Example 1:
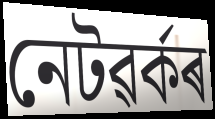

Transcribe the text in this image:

নেটৱৰ্কৰ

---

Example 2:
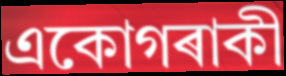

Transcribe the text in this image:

একোগৰাকী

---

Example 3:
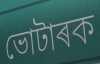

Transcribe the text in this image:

ভোটাৰক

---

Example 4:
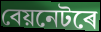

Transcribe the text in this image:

বেয়নেটৰে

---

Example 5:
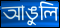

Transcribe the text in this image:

আঙুলি